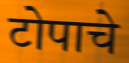
टोपाचे